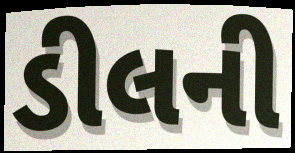
ડીલની